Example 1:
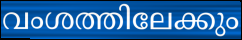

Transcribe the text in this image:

വംശത്തിലേക്കും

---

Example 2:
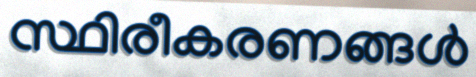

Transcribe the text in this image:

സ്ഥിരീകരണങ്ങൾ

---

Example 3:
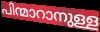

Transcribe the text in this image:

പിന്മാറാനുള്ള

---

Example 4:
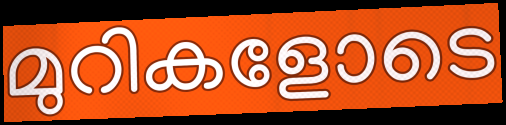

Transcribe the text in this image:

മുറികളോടെ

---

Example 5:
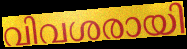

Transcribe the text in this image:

വിവശരായി